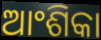
ଆଂଶିକା